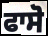
ਫਾਸੋ